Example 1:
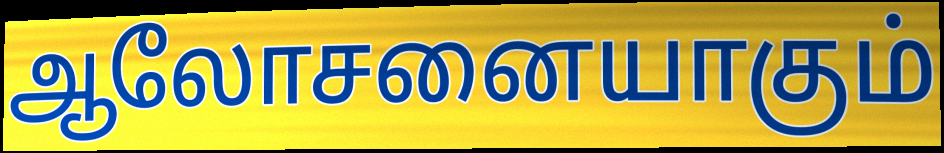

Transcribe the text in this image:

ஆலோசனையாகும்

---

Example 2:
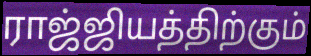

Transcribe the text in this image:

ராஜ்ஜியத்திற்கும்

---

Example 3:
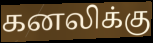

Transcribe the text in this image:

கனலிக்கு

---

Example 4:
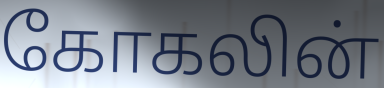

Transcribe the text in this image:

கோகலின்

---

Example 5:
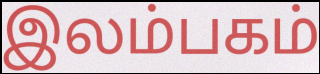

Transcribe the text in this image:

இலம்பகம்